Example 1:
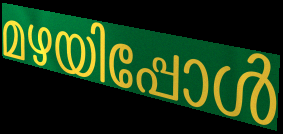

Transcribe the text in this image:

മഴയിപ്പോൾ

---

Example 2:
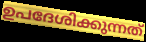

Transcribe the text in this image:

ഉപദേശിക്കുന്നത്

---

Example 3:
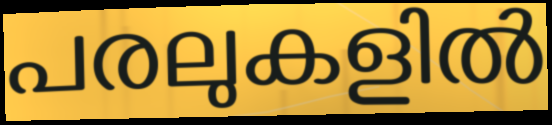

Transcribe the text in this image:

പരലുകളിൽ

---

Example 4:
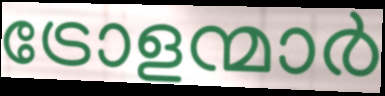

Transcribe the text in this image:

ട്രോളന്മാർ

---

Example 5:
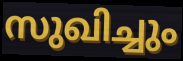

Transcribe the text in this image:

സുഖിച്ചും